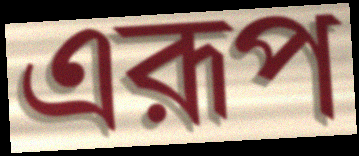
এরূপ